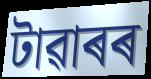
টাৱাৰৰ